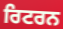
ਰਿਟਰਨ